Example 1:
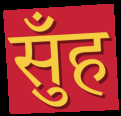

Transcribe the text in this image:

सुँह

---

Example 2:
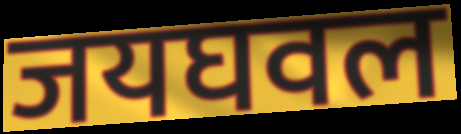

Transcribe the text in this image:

जयघवल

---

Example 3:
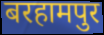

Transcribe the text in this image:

बरहामपुर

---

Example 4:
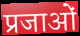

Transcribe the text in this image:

प्रजाओं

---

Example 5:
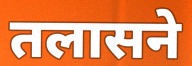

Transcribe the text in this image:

तलासने